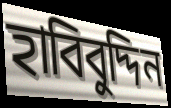
হাবিবুদ্দিন